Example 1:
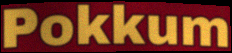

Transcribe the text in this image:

Pokkum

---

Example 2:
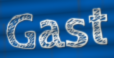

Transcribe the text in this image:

Gast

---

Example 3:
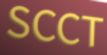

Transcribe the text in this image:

SCCT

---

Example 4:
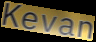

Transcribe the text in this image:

Kevan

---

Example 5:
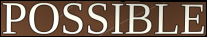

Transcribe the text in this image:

POSSIBLE